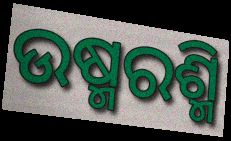
ଉଷ୍ମରଶ୍ମି